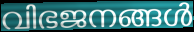
വിഭജനങ്ങൾ